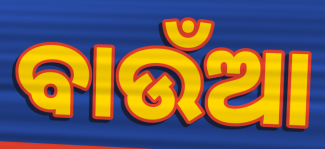
ବାଉଁଆ